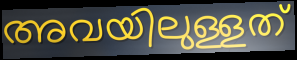
അവയിലുള്ളത്